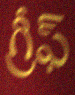
గ్రీఫ్